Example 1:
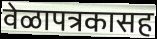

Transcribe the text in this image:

वेळापत्रकासह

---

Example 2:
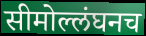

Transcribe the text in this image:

सीमोल्लंघनच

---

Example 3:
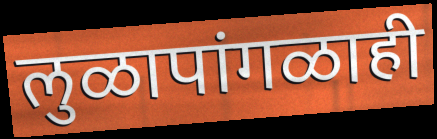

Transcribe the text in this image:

लुळापांगळाही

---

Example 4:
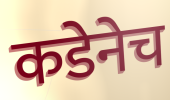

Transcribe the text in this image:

कडेनेच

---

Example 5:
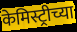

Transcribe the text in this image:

केमिस्ट्रीच्या